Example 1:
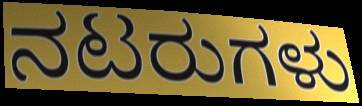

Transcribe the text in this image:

ನಟರುಗಳು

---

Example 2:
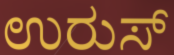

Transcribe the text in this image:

ಉರುಸ್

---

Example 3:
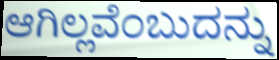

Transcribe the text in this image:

ಆಗಿಲ್ಲವೆಂಬುದನ್ನು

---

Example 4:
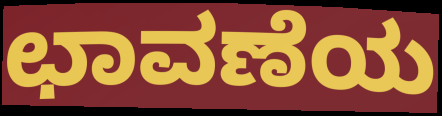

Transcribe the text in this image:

ಛಾವಣೆಯ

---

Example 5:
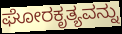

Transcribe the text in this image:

ಘೋರಕೃತ್ಯವನ್ನು